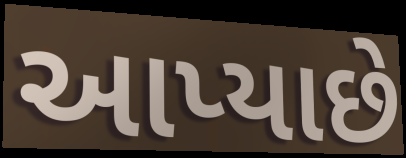
આપ્યાછે